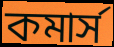
কমার্স